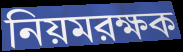
নিয়মরক্ষক